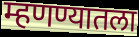
म्हणण्यातला